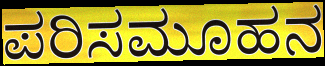
ಪರಿಸಮೂಹನ